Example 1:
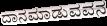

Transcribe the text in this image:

ದಾನಮಾಡುವವನ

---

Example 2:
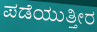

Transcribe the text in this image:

ಪಡೆಯುತ್ತೀರ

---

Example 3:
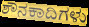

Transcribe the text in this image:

ಶೌನಕಾದಿಗಳು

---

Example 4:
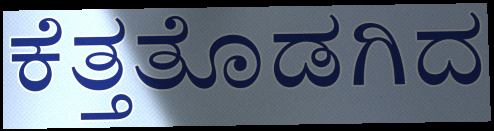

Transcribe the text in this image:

ಕೆತ್ತತೊಡಗಿದ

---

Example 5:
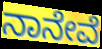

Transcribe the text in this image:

ನಾನೇವೆ